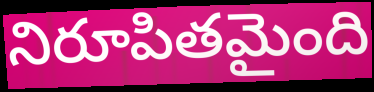
నిరూపితమైంది